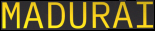
MADURAI